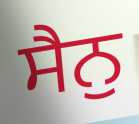
ਸੈਨੁ